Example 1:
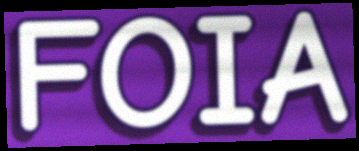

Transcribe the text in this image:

FOIA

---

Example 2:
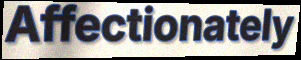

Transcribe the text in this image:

Affectionately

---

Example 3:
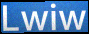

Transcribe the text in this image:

Lwiw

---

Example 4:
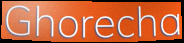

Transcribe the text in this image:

Ghorecha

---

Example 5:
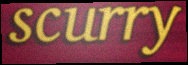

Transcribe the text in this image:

scurry